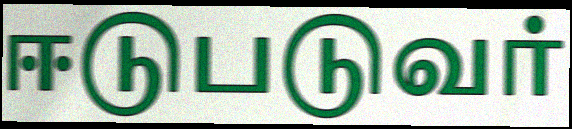
ஈடுபடுவர்